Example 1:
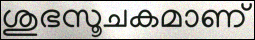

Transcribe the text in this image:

ശുഭസൂചകമാണ്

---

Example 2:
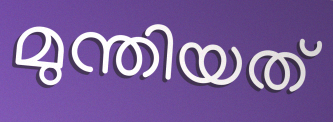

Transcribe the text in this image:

മുന്തിയത്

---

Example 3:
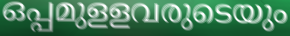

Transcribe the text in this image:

ഒപ്പമുളളവരുടെയും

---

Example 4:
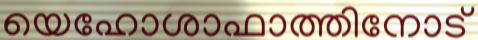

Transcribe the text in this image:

യെഹോശാഫാത്തിനോട്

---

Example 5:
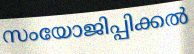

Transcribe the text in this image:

സംയോജിപ്പിക്കൽ